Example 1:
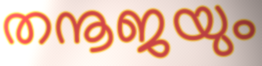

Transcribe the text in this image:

തനൂജയും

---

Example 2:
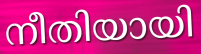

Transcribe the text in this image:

നീതിയായി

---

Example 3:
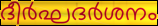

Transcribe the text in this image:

ദീർഘദർശനം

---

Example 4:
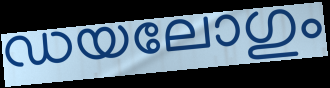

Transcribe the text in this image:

ഡയലോഗും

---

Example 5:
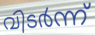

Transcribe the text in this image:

വിടർന്ന്